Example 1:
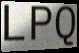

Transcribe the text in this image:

LPQ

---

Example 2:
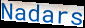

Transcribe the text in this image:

Nadars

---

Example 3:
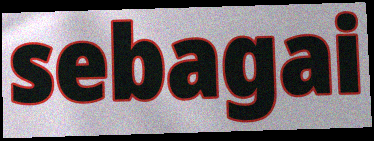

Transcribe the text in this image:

sebagai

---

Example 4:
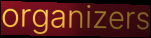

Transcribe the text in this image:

organizers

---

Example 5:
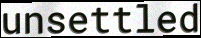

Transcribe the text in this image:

unsettled